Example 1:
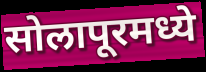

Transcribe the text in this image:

सोलापूरमध्ये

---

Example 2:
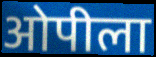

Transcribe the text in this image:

ओपीला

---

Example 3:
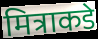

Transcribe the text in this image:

मित्राकडे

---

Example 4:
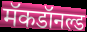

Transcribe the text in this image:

मॅकडॉनल्ड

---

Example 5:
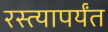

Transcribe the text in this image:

रस्त्यापर्यंत